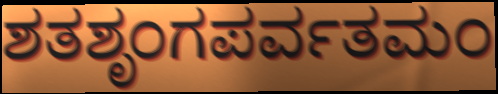
ಶತಶೃಂಗಪರ್ವತಮಂ